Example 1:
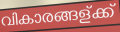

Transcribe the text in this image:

വികാരങ്ങള്ക്ക്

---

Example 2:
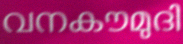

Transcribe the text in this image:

വനകൗമുദി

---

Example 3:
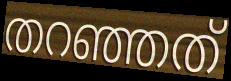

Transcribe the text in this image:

തറഞ്ഞത്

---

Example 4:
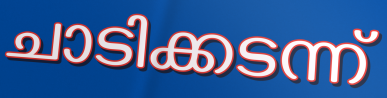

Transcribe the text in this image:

ചാടിക്കടന്ന്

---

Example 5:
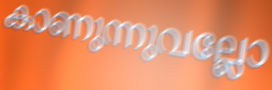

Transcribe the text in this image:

കാണുന്നുവല്ലോ